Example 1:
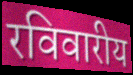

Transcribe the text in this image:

रविवारीय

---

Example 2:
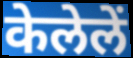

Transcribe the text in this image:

केलेलें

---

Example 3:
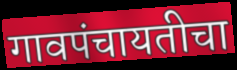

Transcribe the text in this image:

गावपंचायतीचा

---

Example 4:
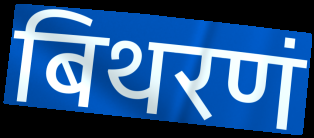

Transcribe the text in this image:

बिथरणं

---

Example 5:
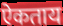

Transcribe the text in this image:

ऐकताय